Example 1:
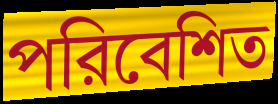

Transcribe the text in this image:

পরিবেশিত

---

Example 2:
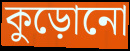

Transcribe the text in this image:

কুড়োনো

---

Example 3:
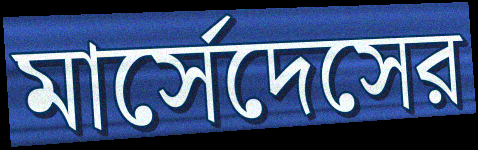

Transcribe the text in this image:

মার্সেদেসের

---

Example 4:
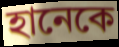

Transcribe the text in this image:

হানেকে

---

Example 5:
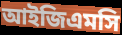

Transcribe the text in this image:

আইজিএমসি